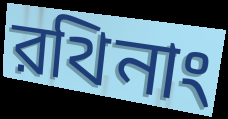
রথিনাং